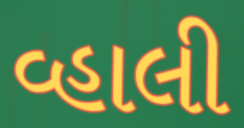
વ્હાલી